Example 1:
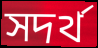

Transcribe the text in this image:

সদর্থ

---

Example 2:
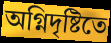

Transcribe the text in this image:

অগ্নিদৃষ্টিতে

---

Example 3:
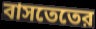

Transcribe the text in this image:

বাসতেতের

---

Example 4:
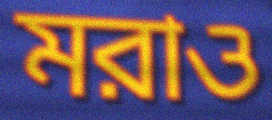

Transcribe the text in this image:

মরাও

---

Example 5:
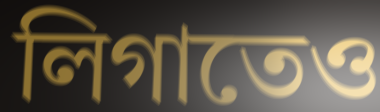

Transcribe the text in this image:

লিগাতেও